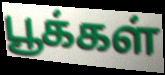
பூக்கள்